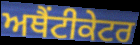
ਅਥੈਂਟੀਕੇਟਰ